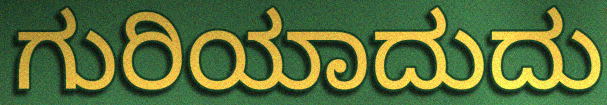
ಗುರಿಯಾದುದು